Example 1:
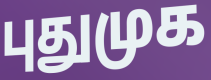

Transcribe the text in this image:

புதுமுக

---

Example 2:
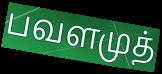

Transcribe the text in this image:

பவளமுத்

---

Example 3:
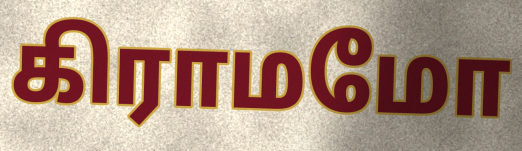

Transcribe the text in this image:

கிராமமோ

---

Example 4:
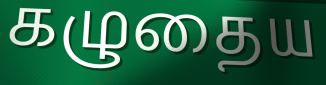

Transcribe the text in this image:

கழுதைய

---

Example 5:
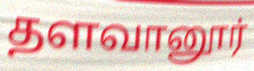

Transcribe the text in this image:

தளவானூர்